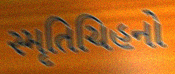
સ્મૃતિચિહનો